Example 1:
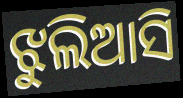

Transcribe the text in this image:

ଝୁଲିଆସି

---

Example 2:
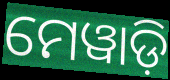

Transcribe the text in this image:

ମେୱାଡ଼ି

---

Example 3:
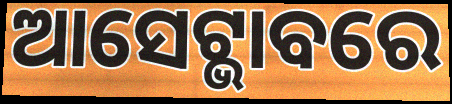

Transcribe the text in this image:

ଆସେଟ୍ଭାବରେ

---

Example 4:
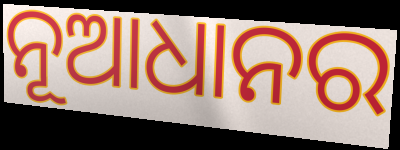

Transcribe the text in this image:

ନୂଆଧାନର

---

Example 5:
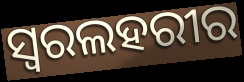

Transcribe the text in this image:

ସ୍ୱରଲହରୀର